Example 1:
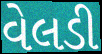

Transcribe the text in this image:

વેલડી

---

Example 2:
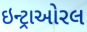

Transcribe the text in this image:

ઇન્ટ્રાઓરલ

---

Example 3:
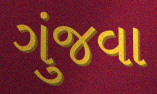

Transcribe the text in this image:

ગુંજવા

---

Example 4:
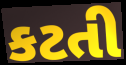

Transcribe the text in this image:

કટતી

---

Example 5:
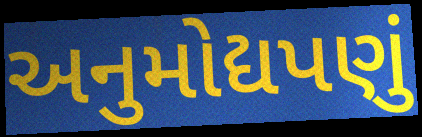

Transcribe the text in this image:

અનુમોદ્યપણું